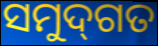
ସମୁଦ୍‌ଗତ